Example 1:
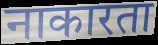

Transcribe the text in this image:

नाकारता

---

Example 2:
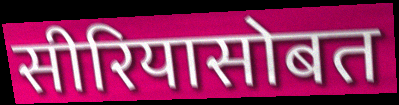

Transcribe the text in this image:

सीरियासोबत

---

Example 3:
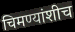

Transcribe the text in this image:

चिमण्यांशीच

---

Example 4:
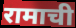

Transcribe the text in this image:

रामाची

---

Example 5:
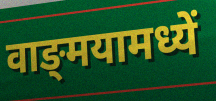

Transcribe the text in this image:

वाङ्‌मयामध्यें